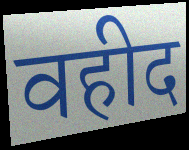
वहीद